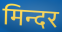
मिन्दर